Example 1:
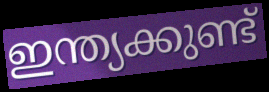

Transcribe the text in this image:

ഇന്ത്യക്കുണ്ട്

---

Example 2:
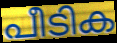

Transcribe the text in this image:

പീടിക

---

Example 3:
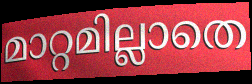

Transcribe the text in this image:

മാറ്റമില്ലാതെ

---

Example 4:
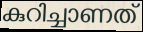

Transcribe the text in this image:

കുറിച്ചാണത്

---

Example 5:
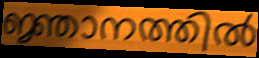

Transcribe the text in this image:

ജ്ഞാനത്തിൽ